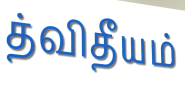
த்விதீயம்